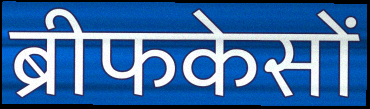
ब्रीफकेसों